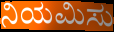
ನಿಯಮಿಸು